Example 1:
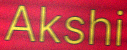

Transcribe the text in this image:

Akshi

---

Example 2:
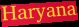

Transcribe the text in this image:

Haryana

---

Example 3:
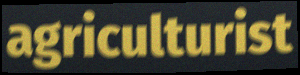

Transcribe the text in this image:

agriculturist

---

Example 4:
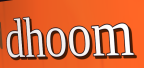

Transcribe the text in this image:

dhoom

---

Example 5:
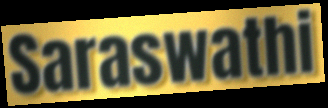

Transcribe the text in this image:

Saraswathi